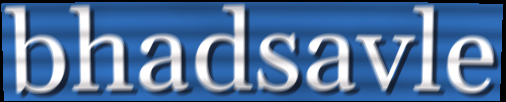
bhadsavle